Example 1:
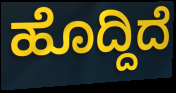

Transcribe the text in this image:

ಹೊದ್ದಿದೆ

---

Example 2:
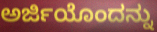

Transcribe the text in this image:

ಅರ್ಜಿಯೊಂದನ್ನು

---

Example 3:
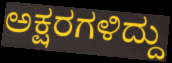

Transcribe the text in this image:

ಅಕ್ಷರಗಳಿದ್ದು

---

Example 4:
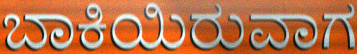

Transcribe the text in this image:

ಬಾಕಿಯಿರುವಾಗ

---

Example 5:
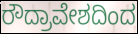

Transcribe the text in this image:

ರೌದ್ರಾವೇಶದಿಂದ